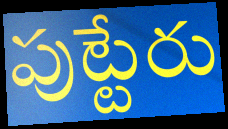
పుట్టేరు